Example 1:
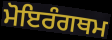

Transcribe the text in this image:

ਮੋਇਰੰਗਥਮ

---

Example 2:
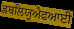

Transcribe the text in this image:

ਡਬਲਿਯੂਐਫਆਈ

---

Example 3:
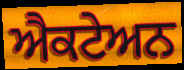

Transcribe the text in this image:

ਐਕਟੇਅਨ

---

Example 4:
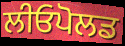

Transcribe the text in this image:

ਲੀਓਪੋਲਡ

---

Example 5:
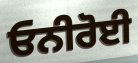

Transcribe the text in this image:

ਓਨੀਰੋਈ